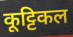
कूट्टिकल